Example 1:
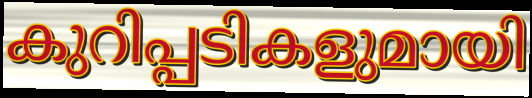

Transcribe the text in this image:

കുറിപ്പടികളുമായി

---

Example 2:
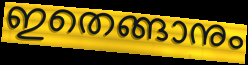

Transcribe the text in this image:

ഇതെങ്ങാനും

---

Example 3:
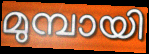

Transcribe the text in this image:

മുമ്പായി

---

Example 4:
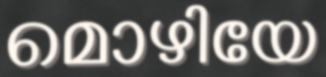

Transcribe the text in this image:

മൊഴിയേ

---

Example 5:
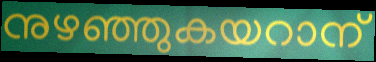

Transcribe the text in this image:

നുഴഞ്ഞുകയറാന്